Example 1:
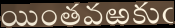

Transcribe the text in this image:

యింతవఱకుఁ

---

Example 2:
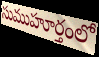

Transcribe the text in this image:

సుముహూర్తంలో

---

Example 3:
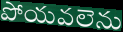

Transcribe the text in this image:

పోయవలెను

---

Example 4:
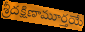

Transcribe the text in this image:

శ్రీదక్షిణామూర్తయే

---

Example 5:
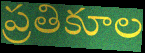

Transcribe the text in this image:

ప్రతికూల